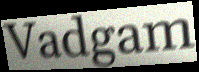
Vadgam